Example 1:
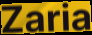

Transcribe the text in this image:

Zaria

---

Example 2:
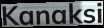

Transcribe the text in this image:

Kanaksi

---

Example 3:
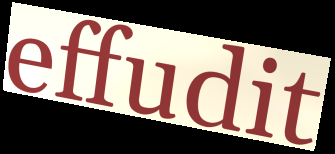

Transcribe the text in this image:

effudit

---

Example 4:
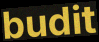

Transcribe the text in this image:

budit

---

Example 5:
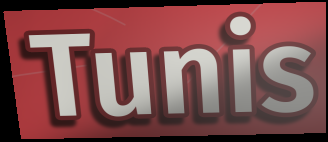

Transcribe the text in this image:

Tunis